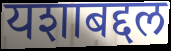
यशाबद्दल